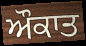
ਔਕਾਤ